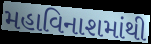
મહાવિનાશમાંથી